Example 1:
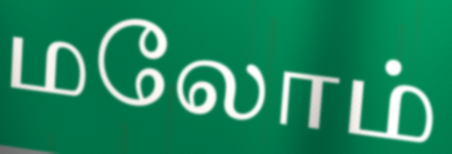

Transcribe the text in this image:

மலோம்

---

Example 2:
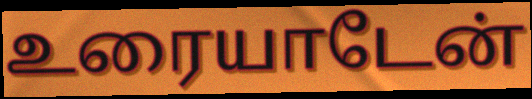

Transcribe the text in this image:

உரையாடேன்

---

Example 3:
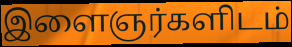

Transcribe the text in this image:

இளைஞர்களிடம்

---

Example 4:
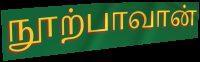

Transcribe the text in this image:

நூற்பாவான்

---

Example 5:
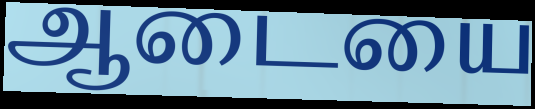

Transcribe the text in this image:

ஆடையை